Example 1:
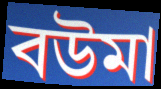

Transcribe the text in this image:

বউমা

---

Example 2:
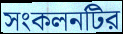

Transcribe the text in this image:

সংকলনটির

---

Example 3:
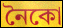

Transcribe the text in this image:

নৈকো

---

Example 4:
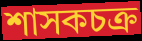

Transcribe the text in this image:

শাসকচক্র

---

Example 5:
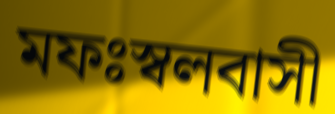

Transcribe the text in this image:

মফঃস্বলবাসী